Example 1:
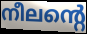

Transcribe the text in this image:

നീലന്റെ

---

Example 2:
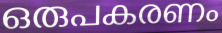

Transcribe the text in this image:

ഒരുപകരണം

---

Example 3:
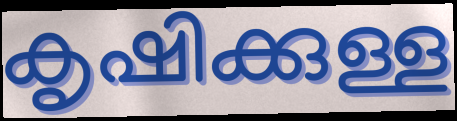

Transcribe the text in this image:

കൃഷിക്കുള്ള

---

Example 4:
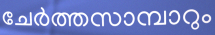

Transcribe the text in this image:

ചേർത്തസാമ്പാറും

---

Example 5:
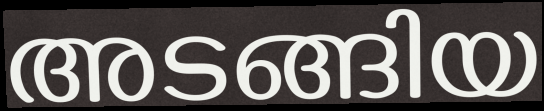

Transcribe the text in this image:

അടങ്ങിയ